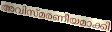
അവിസ്മരണീയമാക്കി